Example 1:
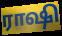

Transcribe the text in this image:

ராஷி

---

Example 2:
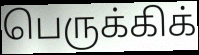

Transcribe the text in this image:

பெருக்கிக்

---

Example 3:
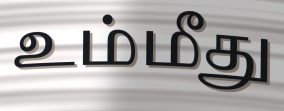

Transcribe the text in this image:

உம்மீது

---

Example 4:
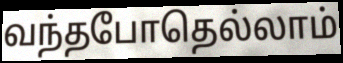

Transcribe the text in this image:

வந்தபோதெல்லாம்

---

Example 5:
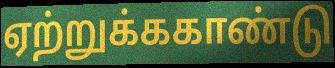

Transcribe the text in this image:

ஏற்றுக்ககாண்டு